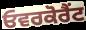
ਓਵਰਕੋਰੈਂਟ